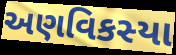
અણવિકસ્યા